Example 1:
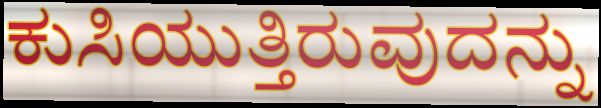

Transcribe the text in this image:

ಕುಸಿಯುತ್ತಿರುವುದನ್ನು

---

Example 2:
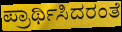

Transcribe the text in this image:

ಪ್ರಾರ್ಥಿಸಿದರಂತೆ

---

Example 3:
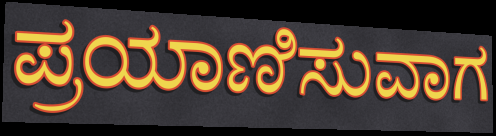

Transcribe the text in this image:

ಪ್ರಯಾಣಿಸುವಾಗ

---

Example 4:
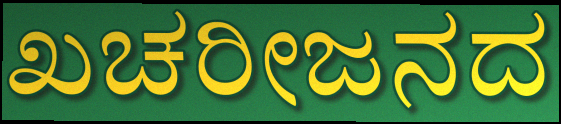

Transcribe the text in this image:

ಖಚರೀಜನದ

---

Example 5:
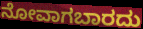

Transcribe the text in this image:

ನೋವಾಗಬಾರದು